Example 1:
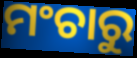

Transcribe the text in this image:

ମଂଚାରୁ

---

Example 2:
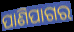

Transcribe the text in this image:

ପାଣିପାଗର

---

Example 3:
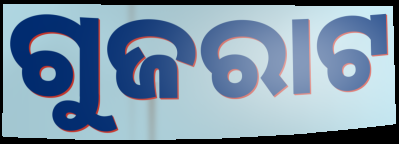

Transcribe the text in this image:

ଗୁଜରାଟ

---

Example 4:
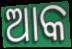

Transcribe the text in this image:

ଆକ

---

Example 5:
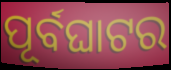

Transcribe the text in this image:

ପୂର୍ବଘାଟର